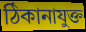
ঠিকানাযুক্ত